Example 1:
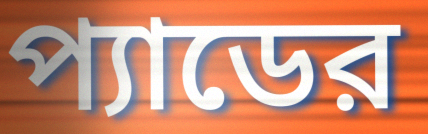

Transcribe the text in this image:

প্যাডের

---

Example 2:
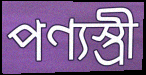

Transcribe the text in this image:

পণ্যস্ত্রী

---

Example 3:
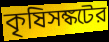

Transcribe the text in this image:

কৃষিসঙ্কটের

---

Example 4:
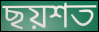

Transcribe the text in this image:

ছয়শত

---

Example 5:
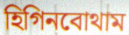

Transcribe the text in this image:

হিগিনবোথাম